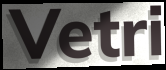
Vetri